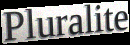
Pluralite